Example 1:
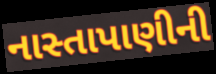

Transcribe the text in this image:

નાસ્તાપાણીની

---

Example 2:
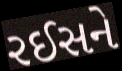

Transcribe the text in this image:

રઈસને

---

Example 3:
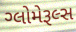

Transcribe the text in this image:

ગ્લોમેરૂલ્સ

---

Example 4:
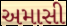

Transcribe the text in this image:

અમાસી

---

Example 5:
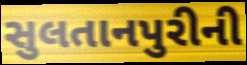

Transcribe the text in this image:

સુલતાનપુરીની